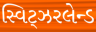
સ્વિટ્ઝરલેન્ડ